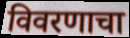
विवरणाचा